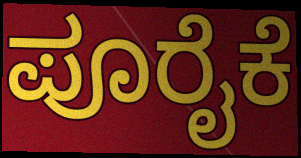
ಪೂರೈಕೆ